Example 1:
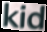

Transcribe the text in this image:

kid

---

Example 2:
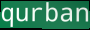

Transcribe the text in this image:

qurban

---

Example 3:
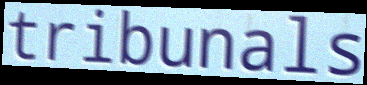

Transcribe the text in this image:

tribunals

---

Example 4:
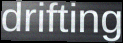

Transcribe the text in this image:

drifting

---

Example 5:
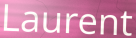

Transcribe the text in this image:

Laurent